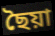
ছৈয়া